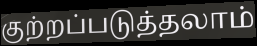
குற்றப்படுத்தலாம்